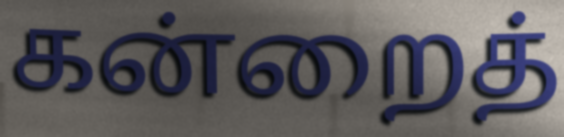
கன்றைத்